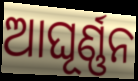
ଆଘୂର୍ଣ୍ଣନ